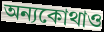
অন্যকোথাও